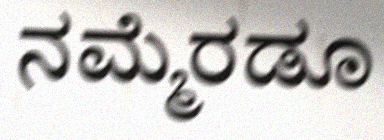
ನಮ್ಮೆರಡೂ